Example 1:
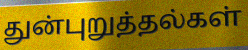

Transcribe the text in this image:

துன்புறுத்தல்கள்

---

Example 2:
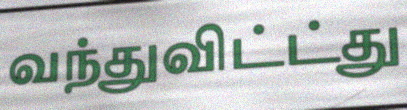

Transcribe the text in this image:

வந்துவிட்ட்து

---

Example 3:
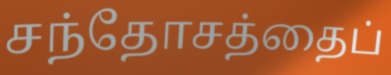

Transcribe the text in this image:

சந்தோசத்தைப்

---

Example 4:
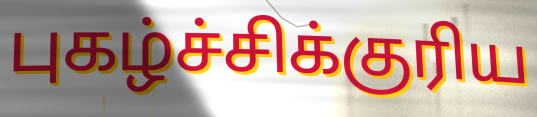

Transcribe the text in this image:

புகழ்ச்சிக்குரிய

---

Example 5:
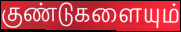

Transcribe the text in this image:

குண்டுகளையும்